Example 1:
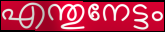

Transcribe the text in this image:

എന്തുനേട്ടം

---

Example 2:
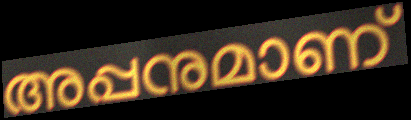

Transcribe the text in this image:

അപ്പനുമാണ്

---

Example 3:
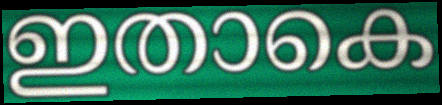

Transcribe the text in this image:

ഇതാകെ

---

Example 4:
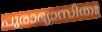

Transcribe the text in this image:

പുരാഭ്യാസിതഃ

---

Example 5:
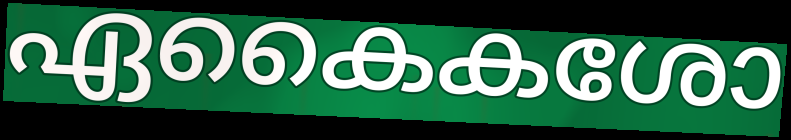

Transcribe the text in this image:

ഏകൈകശോ